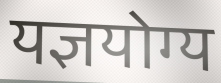
यज्ञयोग्य